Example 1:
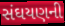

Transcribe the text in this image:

સંઘયણની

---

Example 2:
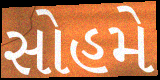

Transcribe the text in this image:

સોહમે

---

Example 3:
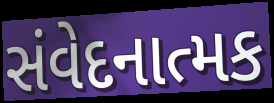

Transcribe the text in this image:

સંવેદનાત્મક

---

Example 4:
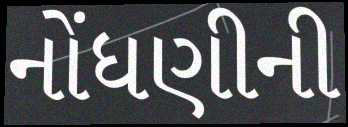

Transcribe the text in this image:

નોંધણીની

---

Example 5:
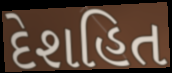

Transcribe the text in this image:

દેશહિત